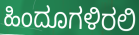
ಹಿಂದೂಗಳಿರಲಿ